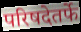
परिषदेतर्फे